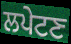
ਲਪੇਟਣ